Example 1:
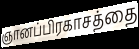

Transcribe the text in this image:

ஞானப்பிரகாசத்தை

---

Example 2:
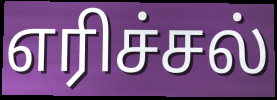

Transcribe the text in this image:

எரிச்சல்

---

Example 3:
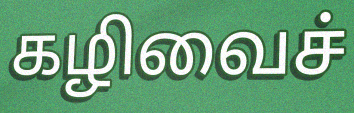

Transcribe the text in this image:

கழிவைச்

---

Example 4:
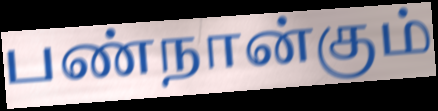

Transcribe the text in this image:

பண்நான்கும்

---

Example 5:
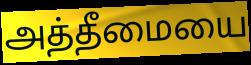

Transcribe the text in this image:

அத்தீமையை